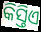
କିସ୍ତିଏ